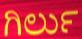
ಗಿರ್ಲು